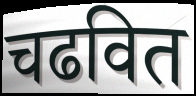
चढवित